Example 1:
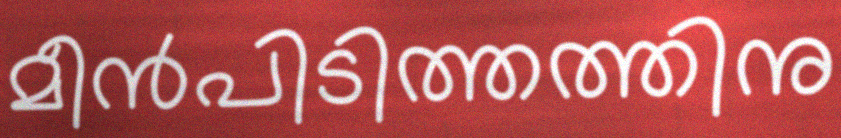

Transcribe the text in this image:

മീൻപിടിത്തത്തിനു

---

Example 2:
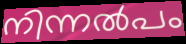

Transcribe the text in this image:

നിന്നൽപം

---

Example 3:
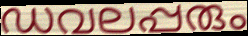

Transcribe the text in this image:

ഡവലപ്പരും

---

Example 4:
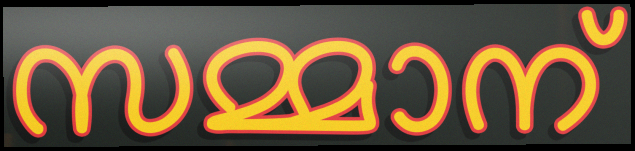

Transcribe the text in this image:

സമ്മാന്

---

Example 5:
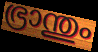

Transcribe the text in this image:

ഭ്രാന്തും